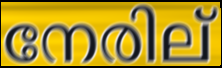
നേരില്